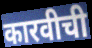
कारवीची